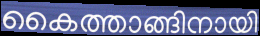
കൈത്താങ്ങിനായി